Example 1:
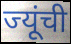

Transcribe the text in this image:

ज्यूंची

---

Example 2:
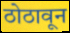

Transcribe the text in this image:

ठोठावून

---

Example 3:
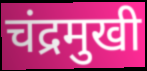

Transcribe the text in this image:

चंद्रमुखी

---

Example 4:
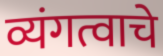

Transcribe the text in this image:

व्यंगत्वाचे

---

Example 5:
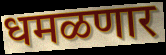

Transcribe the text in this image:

धमळणार